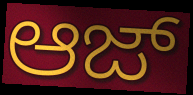
ಆಜ್